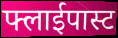
फ्लाईपास्ट